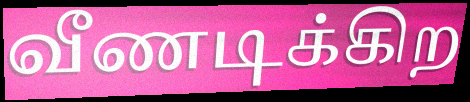
வீணடிக்கிற